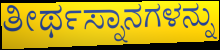
ತೀರ್ಥಸ್ನಾನಗಳನ್ನು